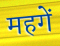
महगें